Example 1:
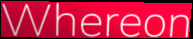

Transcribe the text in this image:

Whereon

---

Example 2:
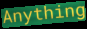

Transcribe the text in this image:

Anything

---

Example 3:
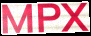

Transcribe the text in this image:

MPX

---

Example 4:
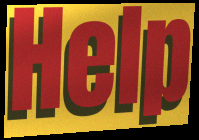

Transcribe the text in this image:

Help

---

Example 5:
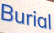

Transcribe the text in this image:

Burial